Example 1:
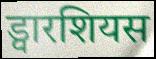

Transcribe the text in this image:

ड्वारशियस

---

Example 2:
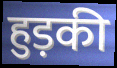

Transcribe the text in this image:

हुड़की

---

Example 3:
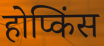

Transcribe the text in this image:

होप्किंस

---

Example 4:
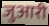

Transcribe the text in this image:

जुआरी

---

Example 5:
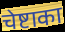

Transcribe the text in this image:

चेष्टाका